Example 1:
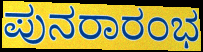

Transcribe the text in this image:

ಪುನರಾರಂಭ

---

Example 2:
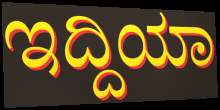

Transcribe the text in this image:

ಇದ್ದಿಯಾ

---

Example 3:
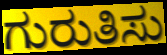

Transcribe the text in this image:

ಗುರುತಿಸು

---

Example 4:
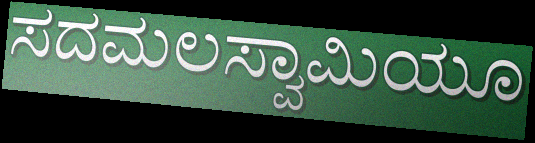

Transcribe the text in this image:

ಸದಮಲಸ್ವಾಮಿಯೂ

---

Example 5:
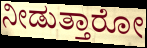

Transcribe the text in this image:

ನೀಡುತ್ತಾರೋ